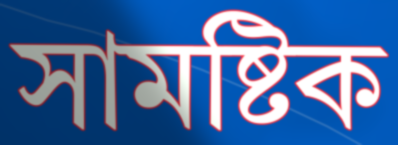
সামষ্টিক